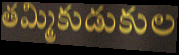
తమ్మికుడుకుల